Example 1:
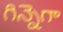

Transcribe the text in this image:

గిన్నెగా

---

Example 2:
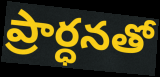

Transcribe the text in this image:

ప్రార్ధనతో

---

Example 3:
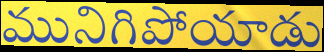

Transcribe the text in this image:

మునిగిపోయాడు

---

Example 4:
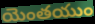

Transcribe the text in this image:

యెంతయుం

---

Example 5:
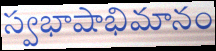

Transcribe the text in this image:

స్వభాషాభిమానం